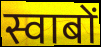
स्वाबों